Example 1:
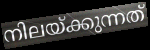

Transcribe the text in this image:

നിലയ്ക്കുന്നത്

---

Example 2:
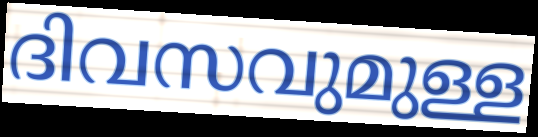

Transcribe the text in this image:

ദിവസവുമുള്ള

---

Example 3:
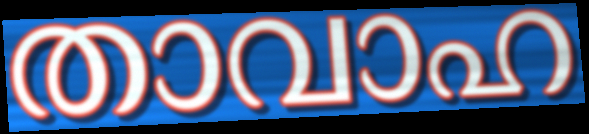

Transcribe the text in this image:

താവാഹ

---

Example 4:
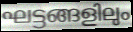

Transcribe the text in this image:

ഘട്ടങ്ങളിലും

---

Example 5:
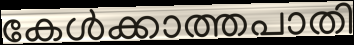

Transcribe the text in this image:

കേൾക്കാത്തപാതി